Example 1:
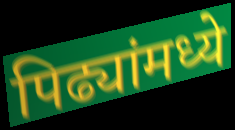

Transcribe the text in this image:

पिढ्यांमध्ये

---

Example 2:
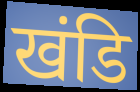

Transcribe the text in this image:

खंडि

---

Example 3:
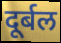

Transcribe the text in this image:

दूर्बल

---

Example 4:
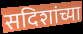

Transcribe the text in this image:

सदिशांच्या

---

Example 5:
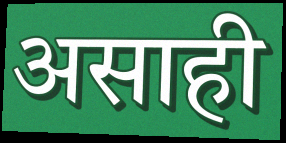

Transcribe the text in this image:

असाही